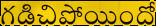
గడిచిపోయిందో